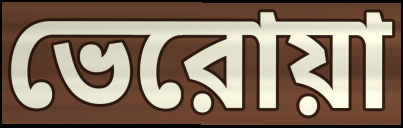
ভেরোয়া